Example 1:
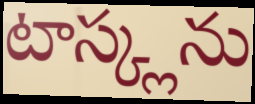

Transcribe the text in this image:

టాస్క్లను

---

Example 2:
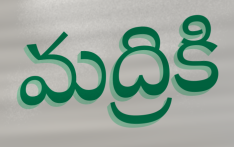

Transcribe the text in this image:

మద్రికి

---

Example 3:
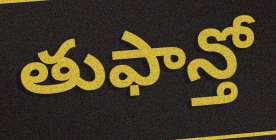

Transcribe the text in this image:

తుఫాన్తో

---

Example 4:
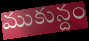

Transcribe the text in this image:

ముకున్దం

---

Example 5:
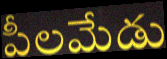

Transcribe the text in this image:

పీలమేడు